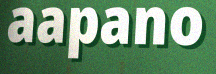
aapano